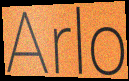
Arlo